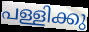
പള്ളിക്കു